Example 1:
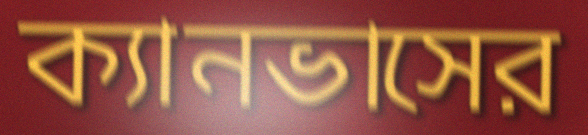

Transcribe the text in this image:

ক্যানভাসের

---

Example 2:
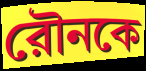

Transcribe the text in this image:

রৌনকে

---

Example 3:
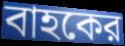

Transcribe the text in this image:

বাহকের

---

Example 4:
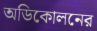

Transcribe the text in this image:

অডিকোলনের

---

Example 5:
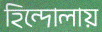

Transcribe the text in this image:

হিন্দোলায়